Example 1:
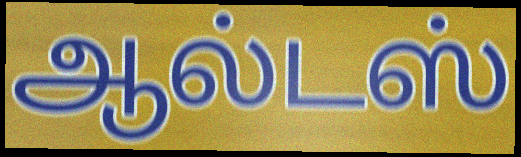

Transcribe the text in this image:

ஆல்டஸ்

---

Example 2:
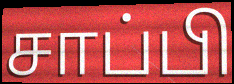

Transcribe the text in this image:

சாப்பி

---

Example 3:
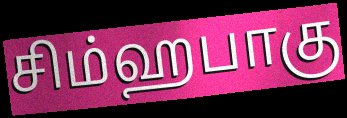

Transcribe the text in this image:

சிம்ஹபாகு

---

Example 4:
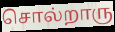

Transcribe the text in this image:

சொல்றாரு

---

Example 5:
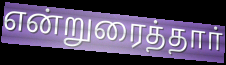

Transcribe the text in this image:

என்றுரைத்தார்